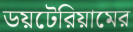
ডয়টেরিয়ামের